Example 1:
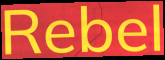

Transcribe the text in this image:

Rebel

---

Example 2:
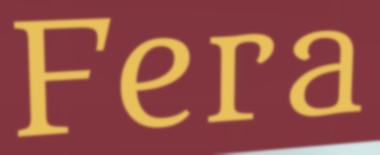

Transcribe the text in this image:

Fera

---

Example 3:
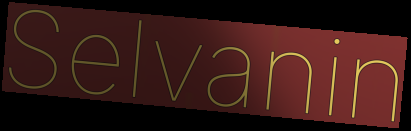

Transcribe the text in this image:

Selvanin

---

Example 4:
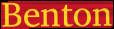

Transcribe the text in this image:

Benton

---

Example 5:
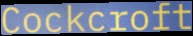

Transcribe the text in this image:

Cockcroft